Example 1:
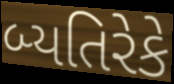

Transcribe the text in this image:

બ્યતિરેકે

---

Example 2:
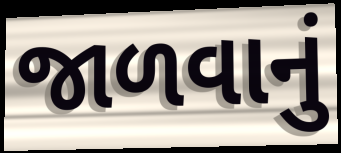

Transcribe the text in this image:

જાળવાનું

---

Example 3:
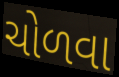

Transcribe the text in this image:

ચોળવા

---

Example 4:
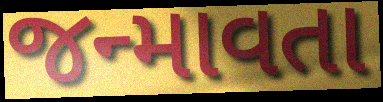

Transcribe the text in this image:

જન્માવતા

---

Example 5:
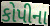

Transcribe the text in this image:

કોપીના